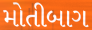
મોતીબાગ